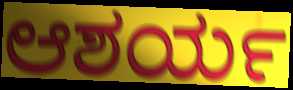
ಆಶರ್ಯ